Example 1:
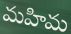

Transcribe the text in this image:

మహిమ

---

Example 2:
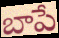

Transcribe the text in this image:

బాపే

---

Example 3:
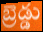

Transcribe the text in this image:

బ్రెడ్డు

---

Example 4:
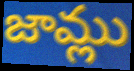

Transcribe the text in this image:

జామ్లు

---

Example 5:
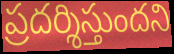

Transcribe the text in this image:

ప్రదర్శిస్తుందని